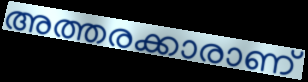
അത്തരക്കാരാണ്